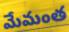
మేమంత